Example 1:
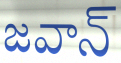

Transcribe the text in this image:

జవాన్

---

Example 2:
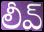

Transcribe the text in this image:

లీవ్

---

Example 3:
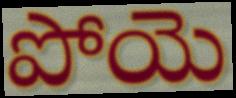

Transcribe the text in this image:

పోయె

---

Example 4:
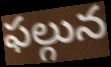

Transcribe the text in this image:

ఫల్గున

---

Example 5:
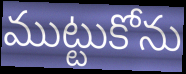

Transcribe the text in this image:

ముట్టుకోను